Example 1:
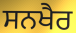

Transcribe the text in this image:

ਸਨਖੈਰ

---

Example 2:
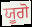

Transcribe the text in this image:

ਯੂਗੋ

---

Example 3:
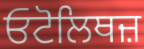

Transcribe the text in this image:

ਓਟੋਲਿਥਜ਼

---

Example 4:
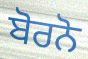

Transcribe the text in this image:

ਬੋਰਨੋ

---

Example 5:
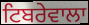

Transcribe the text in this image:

ਟਿਬਰੇਵਾਲਾ